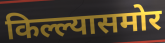
किल्ल्यासमोर